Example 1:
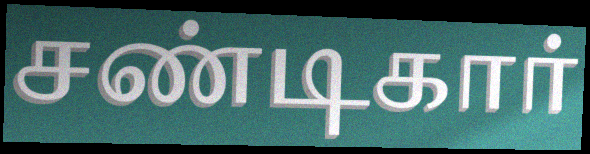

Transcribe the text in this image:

சண்டிகார்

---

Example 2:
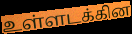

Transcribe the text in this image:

உள்ளடக்கின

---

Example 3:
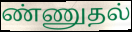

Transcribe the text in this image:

ண்ணுதல்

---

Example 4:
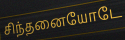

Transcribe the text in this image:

சிந்தனையோடே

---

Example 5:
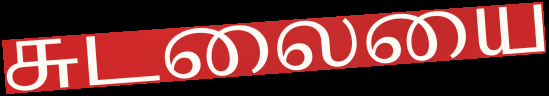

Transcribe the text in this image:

சுடலையை